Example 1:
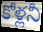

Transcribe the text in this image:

కోళ్లనీ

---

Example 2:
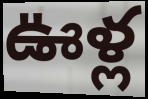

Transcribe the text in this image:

ఊళ్ల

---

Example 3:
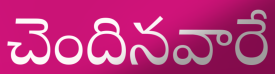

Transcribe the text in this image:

చెందినవారే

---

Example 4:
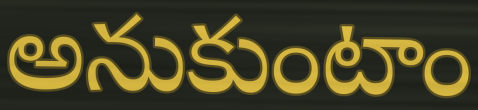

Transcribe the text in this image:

అనుకుంటాం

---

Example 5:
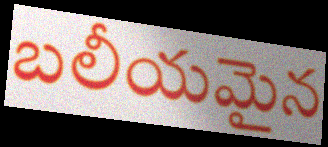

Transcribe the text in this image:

బలీయమైన